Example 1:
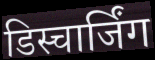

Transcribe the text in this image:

डिस्चार्जिंग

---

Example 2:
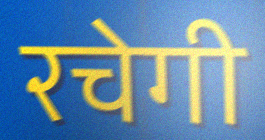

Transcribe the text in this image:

रचेगी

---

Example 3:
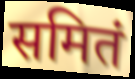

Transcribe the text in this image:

समितं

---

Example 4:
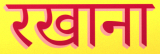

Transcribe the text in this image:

रखाना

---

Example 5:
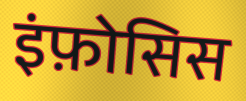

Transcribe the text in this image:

इंफ़ोसिस